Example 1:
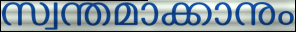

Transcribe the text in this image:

സ്വന്തമാക്കാനും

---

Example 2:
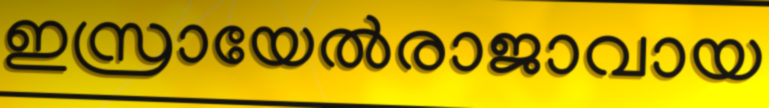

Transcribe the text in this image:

ഇസ്രായേൽരാജാവായ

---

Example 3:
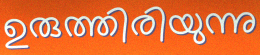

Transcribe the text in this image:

ഉരുത്തിരിയുന്നു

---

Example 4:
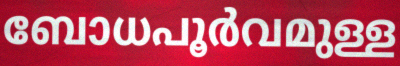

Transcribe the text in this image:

ബോധപൂർവമുള്ള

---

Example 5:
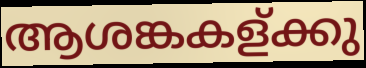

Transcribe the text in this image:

ആശങ്കകള്ക്കു